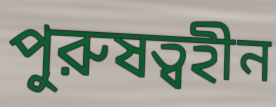
পুরুষত্বহীন